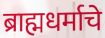
ब्राह्मधर्माचे